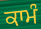
ਕਾਮੰ